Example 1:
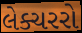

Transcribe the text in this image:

લેક્ચરરો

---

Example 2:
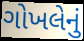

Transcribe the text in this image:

ગોખલેનું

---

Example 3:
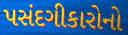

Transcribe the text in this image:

પસંદગીકારોનો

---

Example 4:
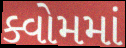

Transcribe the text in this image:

ક્વોમમાં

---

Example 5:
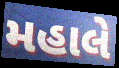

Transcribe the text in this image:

મહાલે